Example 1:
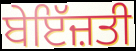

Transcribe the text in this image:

ਬੇਇੱਜ਼ਤੀ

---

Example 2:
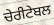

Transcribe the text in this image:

ਚੇਰੀਟੇਬਲ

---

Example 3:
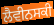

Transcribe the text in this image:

ਲੈਵੀਨਸਕੀ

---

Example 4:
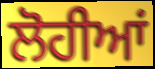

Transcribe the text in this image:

ਲੋਹੀਆਂ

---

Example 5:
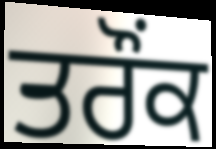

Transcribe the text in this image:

ਤਰੌਂਕ